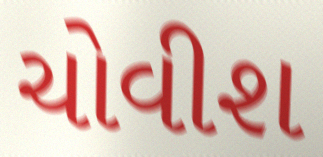
ચોવીશ